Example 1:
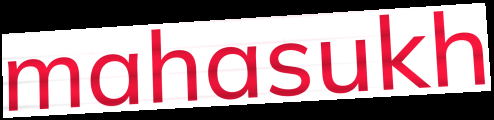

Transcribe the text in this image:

mahasukh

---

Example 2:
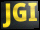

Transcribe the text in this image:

JGI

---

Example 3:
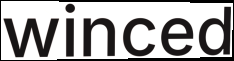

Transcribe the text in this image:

winced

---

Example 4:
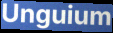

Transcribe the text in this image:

Unguium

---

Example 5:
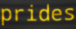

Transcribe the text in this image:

prides